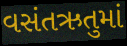
વસંતઋતુમાં